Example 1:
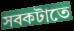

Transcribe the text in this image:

সবকটাতে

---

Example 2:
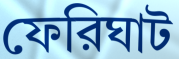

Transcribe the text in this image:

ফেরিঘাট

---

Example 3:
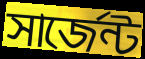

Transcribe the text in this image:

সার্জেন্ট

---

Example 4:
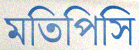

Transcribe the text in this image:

মতিপিসি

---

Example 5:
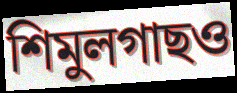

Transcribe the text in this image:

শিমুলগাছও